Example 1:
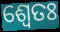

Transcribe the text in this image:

ଶ୍ଵେତଃ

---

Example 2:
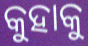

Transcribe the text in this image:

କୁହାକୁ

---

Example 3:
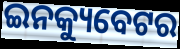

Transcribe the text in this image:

ଇନକ୍ୟୁବେଟର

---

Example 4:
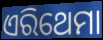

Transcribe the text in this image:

ଏରିଥେମା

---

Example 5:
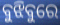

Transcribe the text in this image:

ବୁଝିବୁରେ